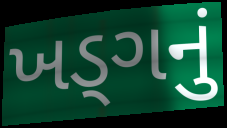
ખડ્ગનું